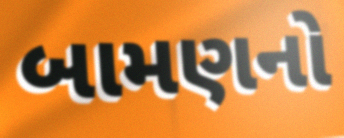
બામણનો